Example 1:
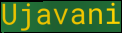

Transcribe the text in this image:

Ujavani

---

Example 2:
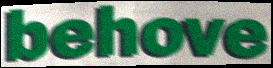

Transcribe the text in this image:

behove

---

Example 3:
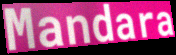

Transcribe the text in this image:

Mandara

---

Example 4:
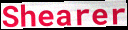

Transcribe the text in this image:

Shearer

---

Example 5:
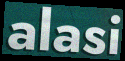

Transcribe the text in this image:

alasi